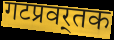
गटप्रवर्तक